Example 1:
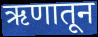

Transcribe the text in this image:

ऋणातून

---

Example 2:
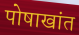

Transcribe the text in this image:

पोषाखांत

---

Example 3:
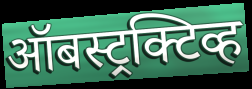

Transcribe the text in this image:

ऑबस्ट्रक्टिव्ह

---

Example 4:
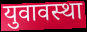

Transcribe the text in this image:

युवावस्था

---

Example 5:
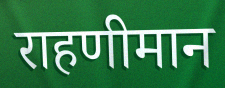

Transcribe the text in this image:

राहणीमान